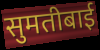
सुमतीबाई